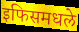
इफिसमधले